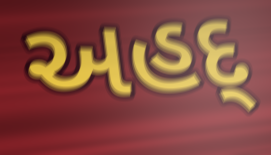
અહદ્